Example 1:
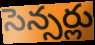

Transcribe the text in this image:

సెన్సర్లు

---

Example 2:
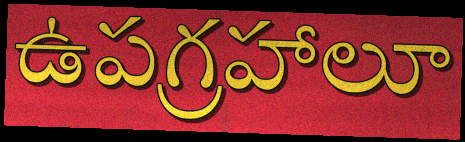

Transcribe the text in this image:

ఉపగ్రహాలూ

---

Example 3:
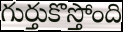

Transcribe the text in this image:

గుర్తుకొస్తోంది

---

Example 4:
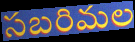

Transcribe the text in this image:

సబరిమల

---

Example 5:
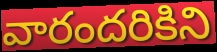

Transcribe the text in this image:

వారందరికిని